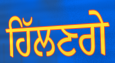
ਹਿੱਲਣਗੇ